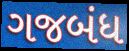
ગજબંધ